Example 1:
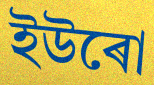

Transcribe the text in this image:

ইউৰো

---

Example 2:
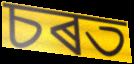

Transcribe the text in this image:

চৰত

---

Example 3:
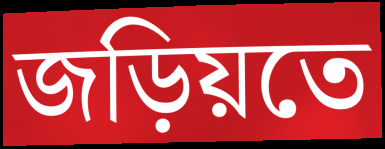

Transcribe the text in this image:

জড়িয়তে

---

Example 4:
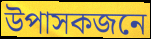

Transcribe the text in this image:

উপাসকজনে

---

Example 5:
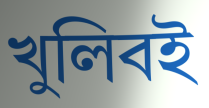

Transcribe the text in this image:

খুলিবই